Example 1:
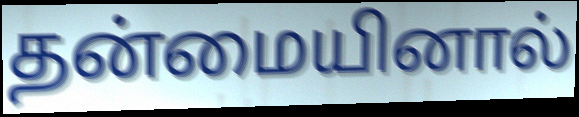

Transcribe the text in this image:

தன்மையினால்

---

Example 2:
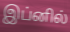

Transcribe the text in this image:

இப்னில்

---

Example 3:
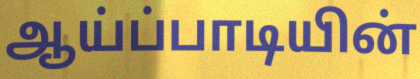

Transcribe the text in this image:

ஆய்ப்பாடியின்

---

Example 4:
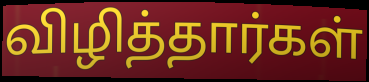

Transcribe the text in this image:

விழித்தார்கள்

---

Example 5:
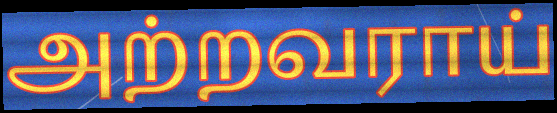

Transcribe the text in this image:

அற்றவராய்